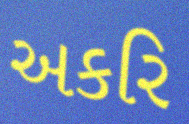
અકરિ